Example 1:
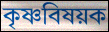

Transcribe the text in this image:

কৃষ্ণবিষয়ক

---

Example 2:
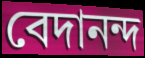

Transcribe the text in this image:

বেদানন্দ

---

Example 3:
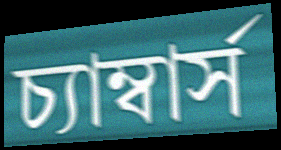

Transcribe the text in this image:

চ্যাম্বার্স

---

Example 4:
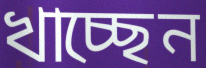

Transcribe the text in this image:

খাচ্ছেন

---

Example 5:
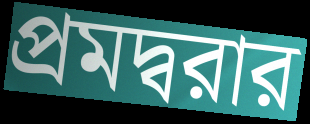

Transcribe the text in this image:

প্রমদ্বরার